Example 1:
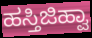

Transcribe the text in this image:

ಹಸ್ತಿಜಿಹ್ವಾ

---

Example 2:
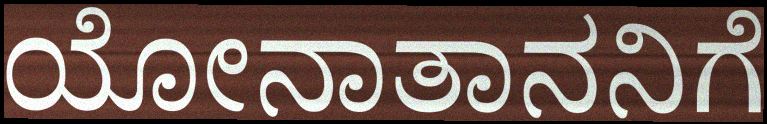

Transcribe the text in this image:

ಯೋನಾತಾನನಿಗೆ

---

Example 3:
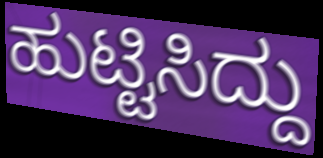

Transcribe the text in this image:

ಹುಟ್ಟಿಸಿದ್ದು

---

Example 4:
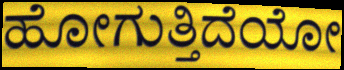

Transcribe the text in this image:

ಹೋಗುತ್ತಿದೆಯೋ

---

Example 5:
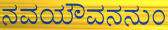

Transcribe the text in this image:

ನವಯೌವನನುಂ